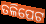
ତଳିପେଟ